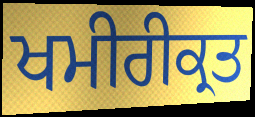
ਖਮੀਰੀਕ੍ਰਤ